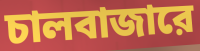
চালবাজারে